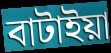
বাটাইয়া